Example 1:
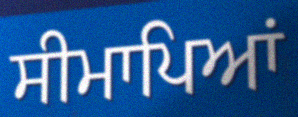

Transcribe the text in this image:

ਸੀਮਾਪਿਆਂ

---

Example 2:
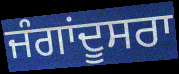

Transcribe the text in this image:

ਜੰਗਾਂਦੂਸਰਾ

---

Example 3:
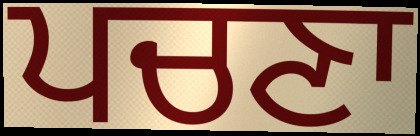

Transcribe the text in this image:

ਪਚਣਾ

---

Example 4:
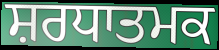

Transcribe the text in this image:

ਸ਼ਰਧਾਤਮਕ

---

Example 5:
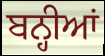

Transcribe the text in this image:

ਬਨ੍ਹੀਆਂ